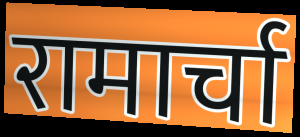
रामार्चा